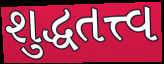
શુદ્ધતત્ત્વ